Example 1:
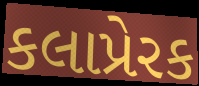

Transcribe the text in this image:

કલાપ્રેરક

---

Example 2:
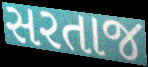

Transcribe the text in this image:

સરતાજ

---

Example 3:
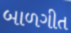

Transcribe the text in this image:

બાળગીત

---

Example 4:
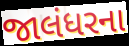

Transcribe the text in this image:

જાલંધરના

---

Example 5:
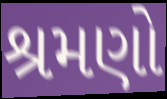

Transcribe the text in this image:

શ્રમણો